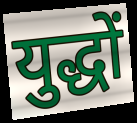
युद्धों